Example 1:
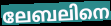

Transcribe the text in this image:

ലേബലിനെ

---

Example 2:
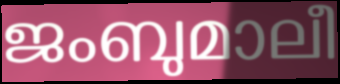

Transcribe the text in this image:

ജംബുമാലീ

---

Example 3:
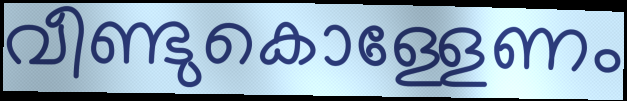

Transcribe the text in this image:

വീണ്ടുകൊള്ളേണം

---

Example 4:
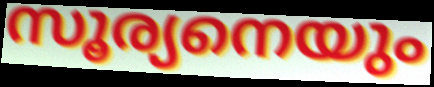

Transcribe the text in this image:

സൂര്യനെയും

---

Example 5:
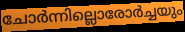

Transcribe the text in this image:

ചോർന്നില്ലൊരോർച്ചയും